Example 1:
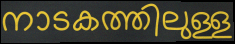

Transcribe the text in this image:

നാടകത്തിലുള്ള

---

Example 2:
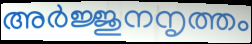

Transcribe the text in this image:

അർജ്ജുനനൃത്തം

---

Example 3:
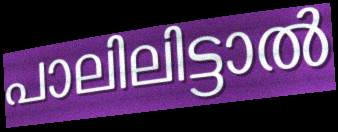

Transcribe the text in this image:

പാലിലിട്ടാൽ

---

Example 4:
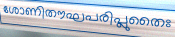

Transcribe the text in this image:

ശോണിതൗഘപരിപ്ലുതൈഃ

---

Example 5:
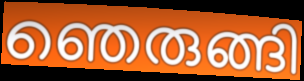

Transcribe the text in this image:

ഞെരുങ്ങി